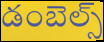
డంబెల్స్